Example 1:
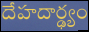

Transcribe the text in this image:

దేహదార్ఢ్యం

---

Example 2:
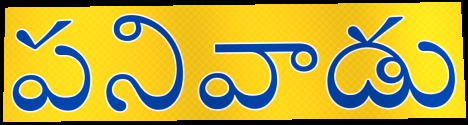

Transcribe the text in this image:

పనివాడు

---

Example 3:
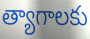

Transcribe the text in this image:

త్యాగాలకు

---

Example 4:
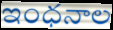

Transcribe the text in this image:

ఇంధనాల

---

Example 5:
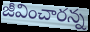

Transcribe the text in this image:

జీవించారన్న